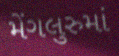
મેંગલુરુમાં